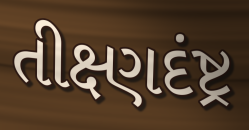
તીક્ષ્ણદંષ્ટ્ર